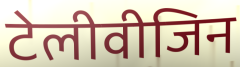
टेलीवीजिन